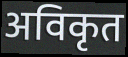
अविकृत